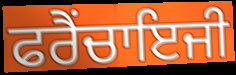
ਫਰੈਂਚਾਇਜੀ